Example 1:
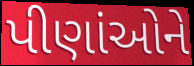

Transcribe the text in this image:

પીણાંઓને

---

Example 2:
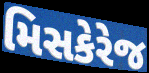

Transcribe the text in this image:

મિસકેરેજ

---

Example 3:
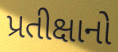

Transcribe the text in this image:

પ્રતીક્ષાનો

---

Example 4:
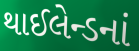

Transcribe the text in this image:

થાઈલેન્ડનાં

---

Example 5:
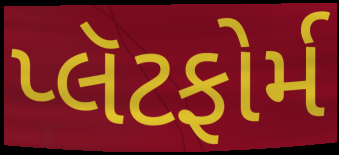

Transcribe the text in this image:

પ્લૅટફોર્મ